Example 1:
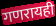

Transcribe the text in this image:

गणरायही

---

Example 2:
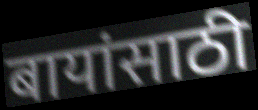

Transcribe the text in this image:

बायांसाठी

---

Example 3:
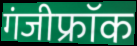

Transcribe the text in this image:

गंजीफ्रॉक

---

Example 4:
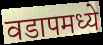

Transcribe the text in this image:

वडापमध्ये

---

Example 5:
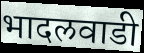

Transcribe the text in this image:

भादलवाडी